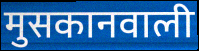
मुसकानवाली